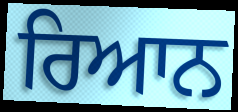
ਰਿਆਨ